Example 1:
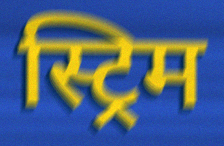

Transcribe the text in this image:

स्ट्रिम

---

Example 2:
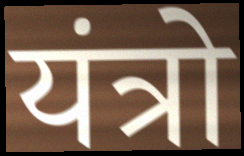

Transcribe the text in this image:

यंत्रो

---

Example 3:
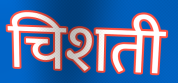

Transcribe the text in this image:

चिशती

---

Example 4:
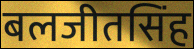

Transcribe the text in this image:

बलजीतसिंह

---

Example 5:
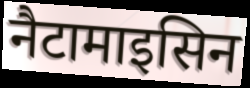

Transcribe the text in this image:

नैटामाइसिन